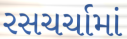
રસચર્ચામાં